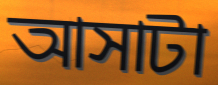
আসাটা